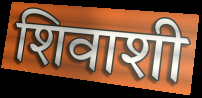
शिवाशी